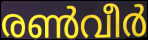
രൺവീർ